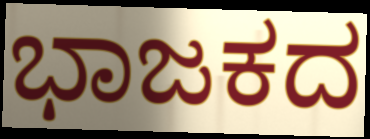
ಭಾಜಕದ